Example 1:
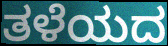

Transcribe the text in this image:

ತಳೆಯದ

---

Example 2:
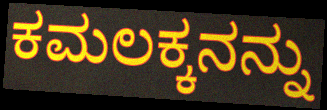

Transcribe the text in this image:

ಕಮಲಕ್ಕನನ್ನು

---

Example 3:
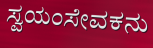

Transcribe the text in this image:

ಸ್ವಯಂಸೇವಕನು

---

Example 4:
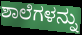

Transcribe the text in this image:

ಶಾಲೆಗಳನ್ನು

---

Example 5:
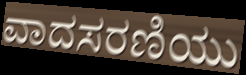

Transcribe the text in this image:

ವಾದಸರಣಿಯು